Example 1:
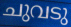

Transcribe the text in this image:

ചുവടു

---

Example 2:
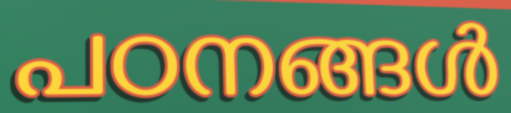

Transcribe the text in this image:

പഠനങ്ങൾ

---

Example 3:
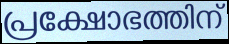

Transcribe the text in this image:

പ്രക്ഷോഭത്തിന്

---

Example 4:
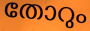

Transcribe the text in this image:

തോറും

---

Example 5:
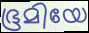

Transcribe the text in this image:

ഭൂമിയേ